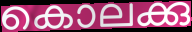
കൊലക്കു